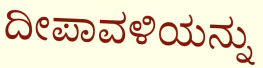
ದೀಪಾವಳಿಯನ್ನು